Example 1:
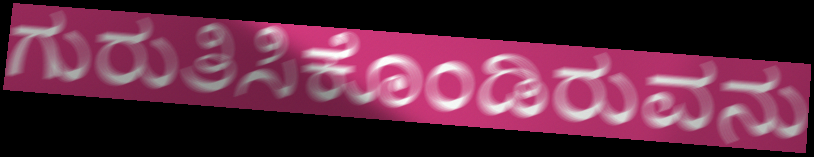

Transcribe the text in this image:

ಗುರುತಿಸಿಕೊಂಡಿರುವನು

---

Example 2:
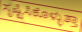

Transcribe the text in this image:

ಸೃಷ್ಟಿಸಿಕೊಳ್ಳುತ್ತಾ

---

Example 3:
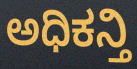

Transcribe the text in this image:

ಅಧಿಕನ್ತಿ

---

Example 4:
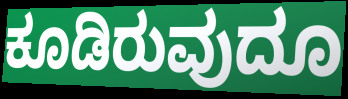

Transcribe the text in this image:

ಕೂಡಿರುವುದೂ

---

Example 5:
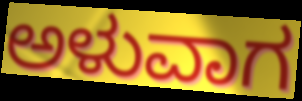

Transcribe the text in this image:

ಅಳುವಾಗ